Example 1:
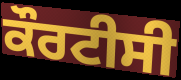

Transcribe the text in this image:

ਕੌਰਟੀਸੀ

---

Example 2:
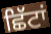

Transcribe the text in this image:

ਛਿੱਟਾਂ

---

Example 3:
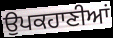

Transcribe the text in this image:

ਉਪਕਹਾਣੀਆਂ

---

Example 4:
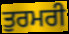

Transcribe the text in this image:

ਤੁਰਮਰੀ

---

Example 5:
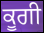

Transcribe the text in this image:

ਕੂਗੀ